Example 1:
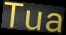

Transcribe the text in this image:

Tua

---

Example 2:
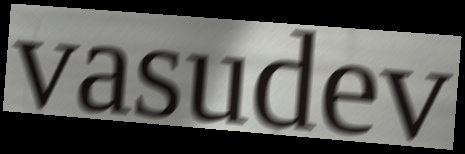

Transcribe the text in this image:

vasudev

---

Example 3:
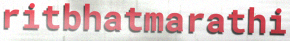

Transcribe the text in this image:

ritbhatmarathi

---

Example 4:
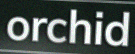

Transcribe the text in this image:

orchid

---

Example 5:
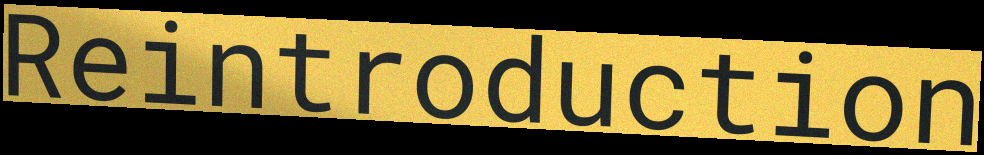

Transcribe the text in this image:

Reintroduction